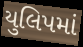
યુલિપમાં